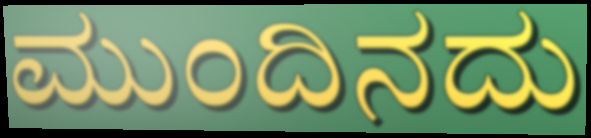
ಮುಂದಿನದು